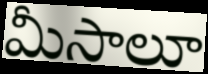
మీసాలూ